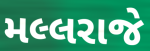
મલ્લરાજે